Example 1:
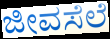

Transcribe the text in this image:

ಜೀವಸೆಲೆ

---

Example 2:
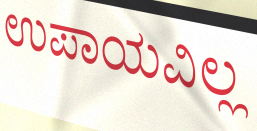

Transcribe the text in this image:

ಉಪಾಯವಿಲ್ಲ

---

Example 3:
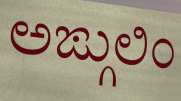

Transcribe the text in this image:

ಅಙ್ಗುಲಿಂ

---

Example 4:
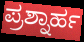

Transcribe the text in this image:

ಪ್ರಶ್ನಾರ್ಹ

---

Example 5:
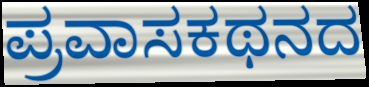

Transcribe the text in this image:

ಪ್ರವಾಸಕಥನದ